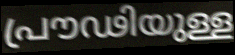
പ്രൗഢിയുള്ള